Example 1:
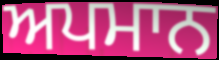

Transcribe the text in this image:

ਅਪਮਾਨ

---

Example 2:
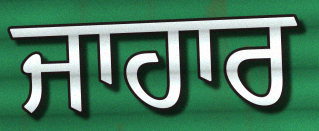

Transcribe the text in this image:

ਜਾਹਾਰ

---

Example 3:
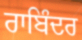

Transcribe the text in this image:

ਰਾਬਿੰਦਰ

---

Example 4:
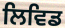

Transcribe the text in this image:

ਲਿਵਿਡ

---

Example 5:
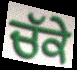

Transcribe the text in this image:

ਚੱਕੇ